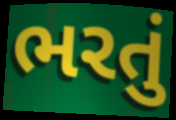
ભરતું